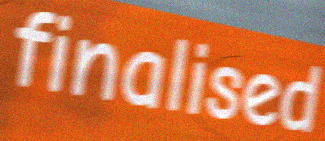
finalised